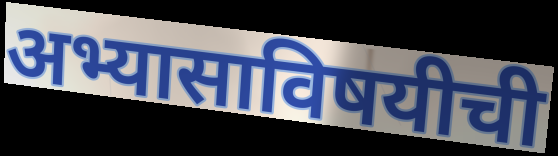
अभ्यासाविषयीची